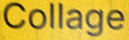
Collage